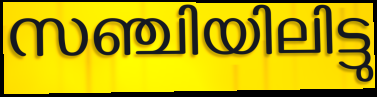
സഞ്ചിയിലിട്ടു